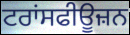
ਟਰਾਂਸਫੀਊਜ਼ਨ